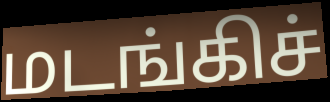
மடங்கிச்